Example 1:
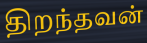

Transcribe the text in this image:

திறந்தவன்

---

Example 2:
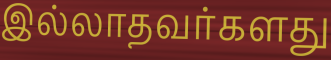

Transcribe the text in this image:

இல்லாதவர்களது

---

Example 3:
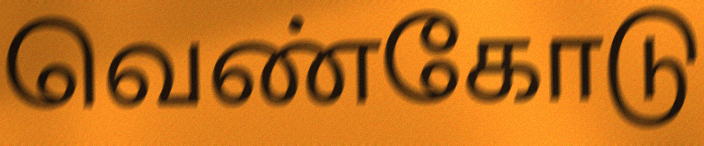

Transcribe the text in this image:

வெண்கோடு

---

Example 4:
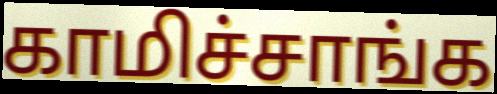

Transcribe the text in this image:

காமிச்சாங்க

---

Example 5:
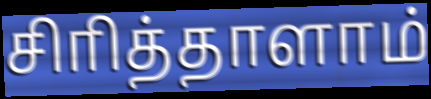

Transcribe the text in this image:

சிரித்தாளாம்